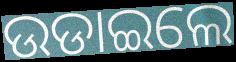
ଉଡାଇଲେ